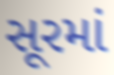
સૂરમાં